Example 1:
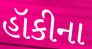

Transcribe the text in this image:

હૉકીના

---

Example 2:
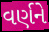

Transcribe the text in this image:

વર્ણને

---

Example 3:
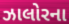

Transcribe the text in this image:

ઝાલોરના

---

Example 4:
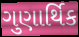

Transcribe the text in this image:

ગુણાર્થિક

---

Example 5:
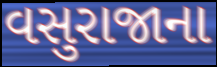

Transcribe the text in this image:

વસુરાજાના